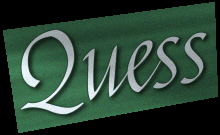
Quess